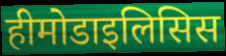
हीमोडाइलिसिस